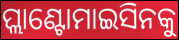
ପ୍ଲାଣ୍ଟୋମାଇସିନକୁ